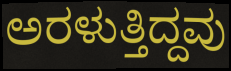
ಅರಳುತ್ತಿದ್ದವು